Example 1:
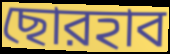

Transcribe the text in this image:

ছোরহাব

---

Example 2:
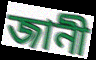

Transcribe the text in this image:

জানী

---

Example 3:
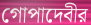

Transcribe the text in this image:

গোপাদেবীর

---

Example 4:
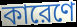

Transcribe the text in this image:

কারেণে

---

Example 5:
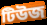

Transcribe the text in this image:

টিউজ